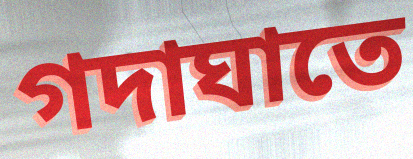
গদাঘাতে